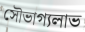
সৌভাগ্যলাভ